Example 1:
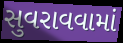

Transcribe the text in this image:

સુવરાવવામાં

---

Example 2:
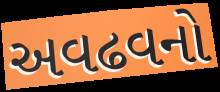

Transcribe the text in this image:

અવઢવનો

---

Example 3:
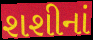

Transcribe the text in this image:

શશીનાં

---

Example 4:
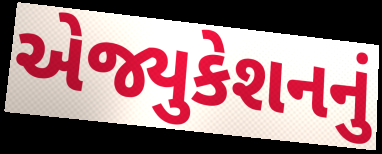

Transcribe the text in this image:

એજ્યુકેશનનું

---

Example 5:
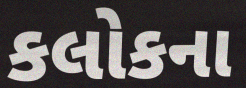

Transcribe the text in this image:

કલોકના